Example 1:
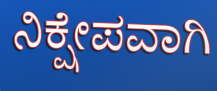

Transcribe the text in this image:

ನಿಕ್ಷೇಪವಾಗಿ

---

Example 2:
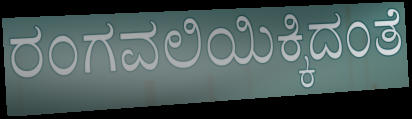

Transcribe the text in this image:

ರಂಗವಲಿಯಿಕ್ಕಿದಂತೆ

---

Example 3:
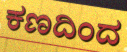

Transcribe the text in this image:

ಕಣದಿಂದ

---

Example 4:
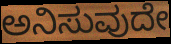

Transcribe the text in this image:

ಅನಿಸುವುದೇ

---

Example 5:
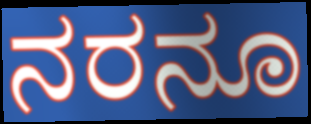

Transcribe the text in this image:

ನರನೂ